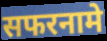
सफरनामे